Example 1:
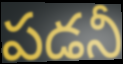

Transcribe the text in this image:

పడనీ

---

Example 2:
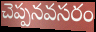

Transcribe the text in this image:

చెప్పనవసరం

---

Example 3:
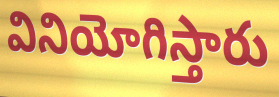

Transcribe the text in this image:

వినియోగిస్తారు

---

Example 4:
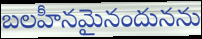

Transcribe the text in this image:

బలహీనమైనందునను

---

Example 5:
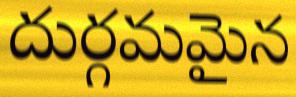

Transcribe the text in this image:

దుర్గమమైన